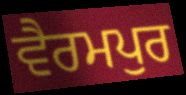
ਵੈਰਮਪੁਰ